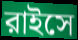
রাইসে